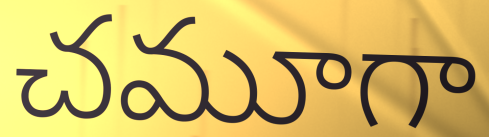
చమూగా